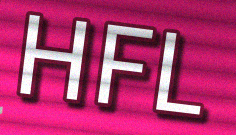
HFL